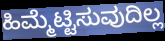
ಹಿಮ್ಮೆಟ್ಟಿಸುವುದಿಲ್ಲ